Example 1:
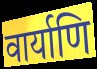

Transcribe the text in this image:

वार्याणि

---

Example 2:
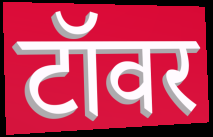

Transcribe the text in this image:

टॉवर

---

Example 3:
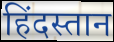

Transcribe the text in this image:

हिंदस्तान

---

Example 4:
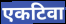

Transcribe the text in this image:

एकटिवा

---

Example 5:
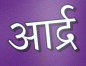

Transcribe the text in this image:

आर्द्र